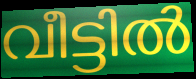
വീട്ടിൽ